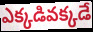
ఎక్కడివక్కడే